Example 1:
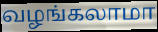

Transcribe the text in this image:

வழங்கலாமா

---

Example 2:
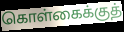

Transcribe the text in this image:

கொள்கைக்குத்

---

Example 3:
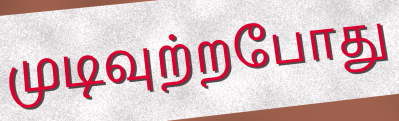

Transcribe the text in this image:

முடிவுற்றபோது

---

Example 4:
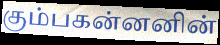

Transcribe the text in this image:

கும்பகன்னனின்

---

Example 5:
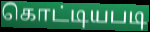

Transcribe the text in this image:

கொட்டியபடி